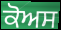
ਕੋਅਸ